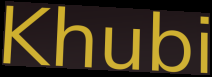
Khubi